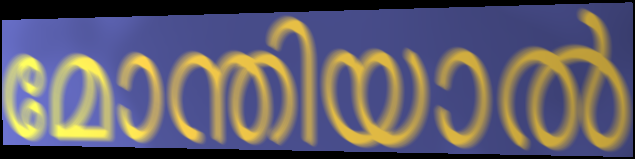
മോന്തിയാൽ